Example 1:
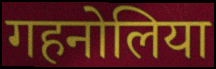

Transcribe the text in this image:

गहनोलिया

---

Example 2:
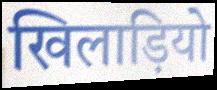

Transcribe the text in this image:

खिलाड़ियो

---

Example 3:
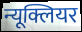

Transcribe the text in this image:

न्‍यूक्लियर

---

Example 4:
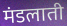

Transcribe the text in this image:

मंडलाती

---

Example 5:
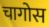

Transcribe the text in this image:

चागोस